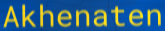
Akhenaten